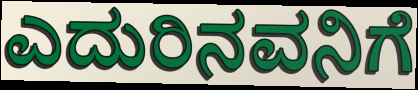
ಎದುರಿನವನಿಗೆ